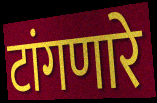
टांगणारे